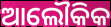
ଆଲୌକିକ